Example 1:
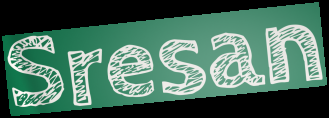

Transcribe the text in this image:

Sresan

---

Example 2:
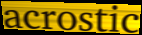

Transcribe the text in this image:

acrostic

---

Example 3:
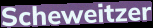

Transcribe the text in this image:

Scheweitzer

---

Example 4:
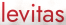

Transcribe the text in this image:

levitas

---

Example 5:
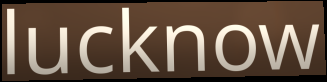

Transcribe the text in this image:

lucknow